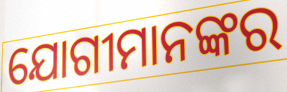
ଯୋଗୀମାନଙ୍କର